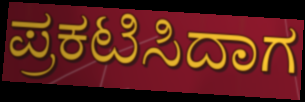
ಪ್ರಕಟಿಸಿದಾಗ